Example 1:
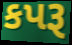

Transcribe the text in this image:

કપરૂ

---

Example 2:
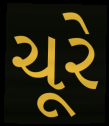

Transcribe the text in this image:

ચૂરે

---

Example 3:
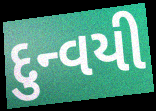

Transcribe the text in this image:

દુન્વયી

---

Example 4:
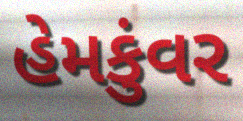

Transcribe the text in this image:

હેમકુંવર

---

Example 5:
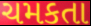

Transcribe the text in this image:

ચમકતા